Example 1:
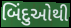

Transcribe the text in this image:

બિંદુઓથી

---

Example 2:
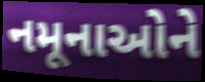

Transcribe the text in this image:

નમૂનાઓને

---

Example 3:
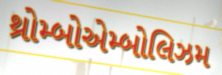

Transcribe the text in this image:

થ્રોમ્બોએમ્બોલિઝમ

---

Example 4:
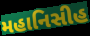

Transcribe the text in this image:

મહાનિસીહ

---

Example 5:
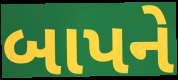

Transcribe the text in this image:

બાપને